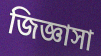
জিজ্ঞাসা